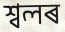
শ্বলৰ